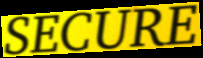
SECURE